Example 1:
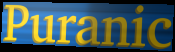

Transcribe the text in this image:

Puranic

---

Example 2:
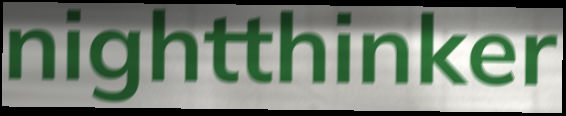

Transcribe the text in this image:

nightthinker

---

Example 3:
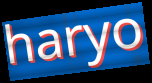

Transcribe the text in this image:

haryo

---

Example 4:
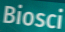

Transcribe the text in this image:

Biosci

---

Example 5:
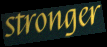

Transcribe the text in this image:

stronger